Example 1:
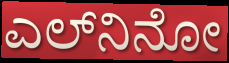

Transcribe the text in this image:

ಎಲ್‍ನಿನೋ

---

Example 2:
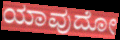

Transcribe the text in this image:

ಯಾವುದೋ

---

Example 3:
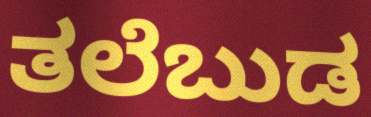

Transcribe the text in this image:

ತಲೆಬುಡ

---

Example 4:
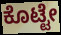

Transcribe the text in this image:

ಕೊಟ್ಟೇ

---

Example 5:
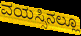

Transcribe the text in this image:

ವಯಸ್ಸಿನಲ್ಲೂ